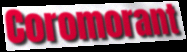
Coromorant